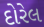
દોરેલ